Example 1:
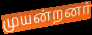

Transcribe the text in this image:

முயன்றனர்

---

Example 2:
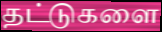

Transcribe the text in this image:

தட்டுகளை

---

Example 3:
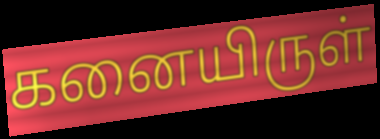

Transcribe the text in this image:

கனையிருள்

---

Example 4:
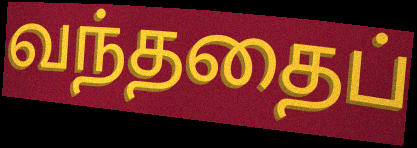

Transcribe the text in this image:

வந்ததைப்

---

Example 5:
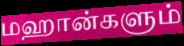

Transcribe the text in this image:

மஹான்களும்